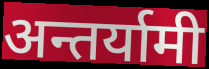
अन्तर्यामी